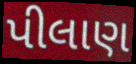
પીલાણ